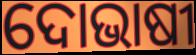
ଦୋଭାଷୀ